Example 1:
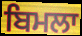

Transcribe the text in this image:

ਬਿਮਲਾ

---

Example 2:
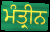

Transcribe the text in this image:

ਮੰਤ੍ਰੀਨ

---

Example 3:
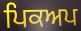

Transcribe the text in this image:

ਪਿਕਅਪ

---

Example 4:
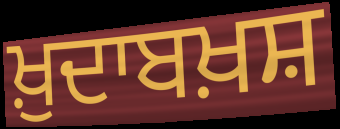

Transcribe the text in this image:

ਖ਼ੁਦਾਬਖ਼ਸ਼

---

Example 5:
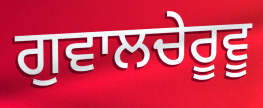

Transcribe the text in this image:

ਗੁਵਾਲਚੇਰੂਵੂ